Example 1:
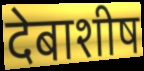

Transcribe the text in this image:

देबाशीष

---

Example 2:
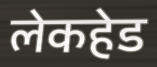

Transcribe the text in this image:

लेकहेड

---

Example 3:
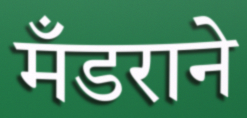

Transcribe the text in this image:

मँडराने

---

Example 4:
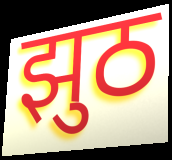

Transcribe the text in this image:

झुठ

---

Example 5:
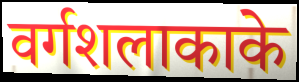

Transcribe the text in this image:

वर्गशलाकाके